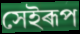
সেইৰূপ